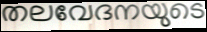
തലവേദനയുടെ